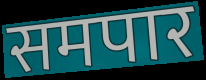
समपार